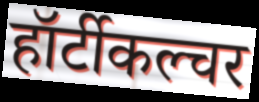
हॉर्टीकल्चर